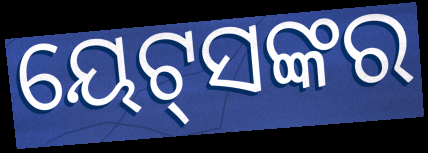
ୟେଟ୍‌ସଙ୍କର